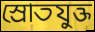
স্রোতযুক্ত